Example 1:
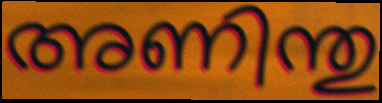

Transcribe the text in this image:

അണിന്തു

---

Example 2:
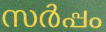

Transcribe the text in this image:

സർപ്പം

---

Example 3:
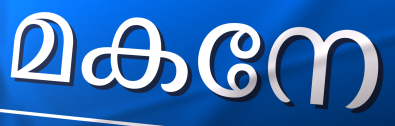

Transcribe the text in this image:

മകനേ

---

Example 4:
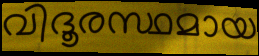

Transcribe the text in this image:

വിദൂരസ്ഥമായ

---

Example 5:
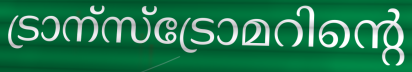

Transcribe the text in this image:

ട്രാന്സ്ട്രോമറിന്റെ